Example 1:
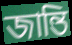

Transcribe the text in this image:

জান্তি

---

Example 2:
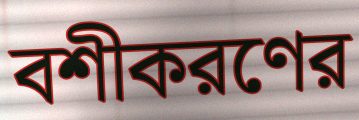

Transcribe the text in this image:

বশীকরণের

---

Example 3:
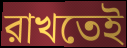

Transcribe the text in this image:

রাখতেই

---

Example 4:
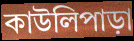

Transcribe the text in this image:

কাউলিপাড়া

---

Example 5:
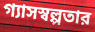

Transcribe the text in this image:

গ্যাসস্বল্পতার